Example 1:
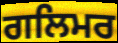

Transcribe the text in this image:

ਗਲਿਮਰ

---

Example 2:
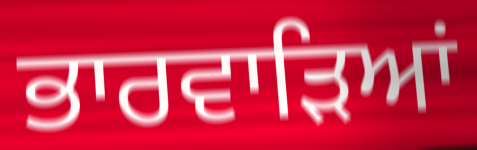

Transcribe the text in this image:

ਭਾਰਵਾੜਿਆਂ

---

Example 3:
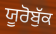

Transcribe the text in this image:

ਯੂਰੋਬੁੱਕ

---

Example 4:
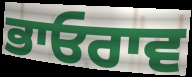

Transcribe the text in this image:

ਭਾਓਰਾਵ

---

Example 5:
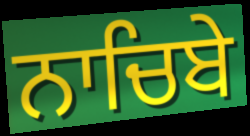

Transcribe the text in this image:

ਨਾਚਿਬੇ